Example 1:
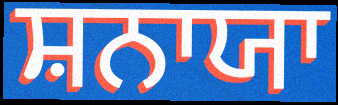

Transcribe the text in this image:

ਸ਼ਨਾਯਾ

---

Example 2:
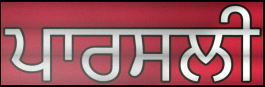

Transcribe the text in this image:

ਪਾਰਸਲੀ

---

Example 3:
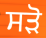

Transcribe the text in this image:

ਸੜੋ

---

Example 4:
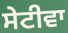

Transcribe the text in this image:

ਸੇਟੀਵਾ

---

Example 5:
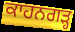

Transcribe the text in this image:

ਕਾਹਨਗੜ੍ਹ